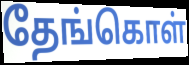
தேங்கொள்